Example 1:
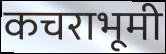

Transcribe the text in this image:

कचराभूमी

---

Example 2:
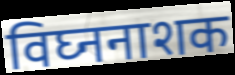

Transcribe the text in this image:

विघ्ननाशक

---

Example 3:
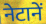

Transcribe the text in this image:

नेटानें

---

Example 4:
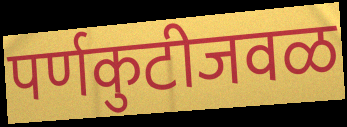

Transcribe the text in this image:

पर्णकुटीजवळ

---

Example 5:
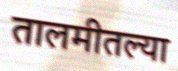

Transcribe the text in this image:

तालमीतल्या